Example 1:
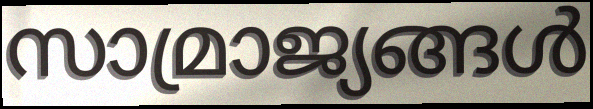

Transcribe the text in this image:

സാമ്രാജ്യങ്ങൾ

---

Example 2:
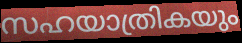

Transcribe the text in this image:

സഹയാത്രികയും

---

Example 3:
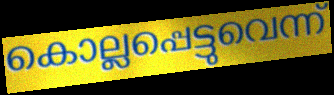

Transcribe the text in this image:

കൊല്ലപ്പെട്ടുവെന്ന്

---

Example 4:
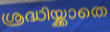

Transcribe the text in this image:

ശ്രദ്ധിയ്ക്കാതെ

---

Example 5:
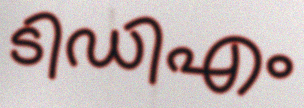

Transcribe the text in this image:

ടിഡിഎം